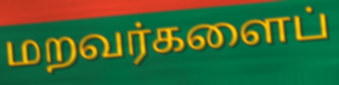
மறவர்களைப்